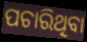
ପଚାରିଥିବା